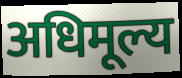
अधिमूल्य